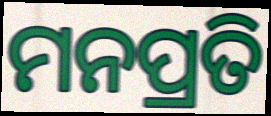
ମନପ୍ରତି